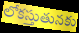
లోకస్తుతునకు